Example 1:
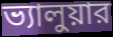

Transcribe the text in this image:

ভ্যালুয়ার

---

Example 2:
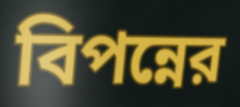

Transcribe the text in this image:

বিপন্নের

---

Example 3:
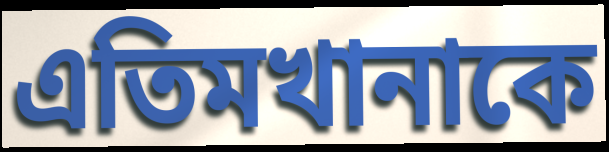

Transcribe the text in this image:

এতিমখানাকে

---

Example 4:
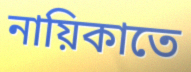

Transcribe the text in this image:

নায়িকাতে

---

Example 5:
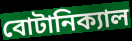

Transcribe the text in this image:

বোটানিক্যাল